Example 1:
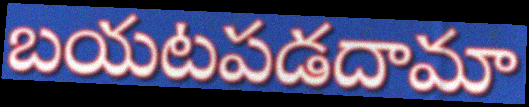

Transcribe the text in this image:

బయటపడదామా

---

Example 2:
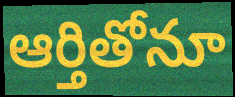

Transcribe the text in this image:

ఆర్తితోనూ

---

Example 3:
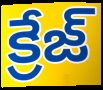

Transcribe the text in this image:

క్రేజ్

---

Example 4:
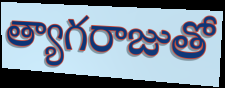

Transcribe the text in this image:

త్యాగరాజుతో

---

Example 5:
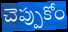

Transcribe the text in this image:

చెప్పుకోం